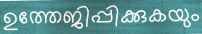
ഉത്തേജിപ്പിക്കുകയും